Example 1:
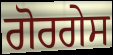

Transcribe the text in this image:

ਗੋਰਗੇਸ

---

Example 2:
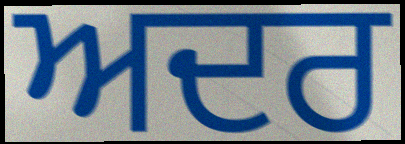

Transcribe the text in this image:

ਅਦਰ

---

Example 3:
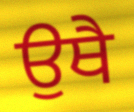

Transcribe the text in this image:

ਉਥੈ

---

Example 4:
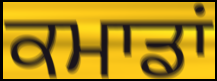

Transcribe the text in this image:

ਕਮਾਡਾਂ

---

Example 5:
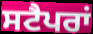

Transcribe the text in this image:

ਸਟੈਪਰਾਂ